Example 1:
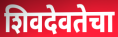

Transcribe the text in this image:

शिवदेवतेचा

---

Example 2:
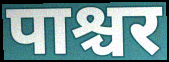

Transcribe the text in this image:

पाश्चर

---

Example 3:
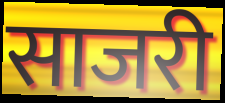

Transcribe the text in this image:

साजरी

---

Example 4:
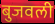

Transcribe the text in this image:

बुजवली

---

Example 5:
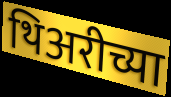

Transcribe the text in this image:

थिअरीच्या